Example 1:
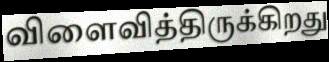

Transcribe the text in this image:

விளைவித்திருக்கிறது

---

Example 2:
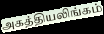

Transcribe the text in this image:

அகத்தியலிங்கம்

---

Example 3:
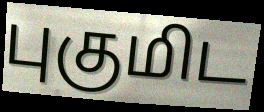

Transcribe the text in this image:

புகுமிட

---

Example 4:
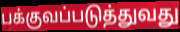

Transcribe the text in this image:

பக்குவப்படுத்துவது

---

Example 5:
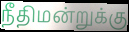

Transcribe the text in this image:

நீதிமன்றுக்கு